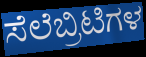
ಸೆಲೆಬ್ರಿಟಿಗಳ